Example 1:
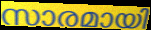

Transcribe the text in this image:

സാരമായി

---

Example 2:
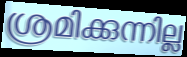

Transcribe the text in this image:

ശ്രമിക്കുന്നില്ല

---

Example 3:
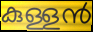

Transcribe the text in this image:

കുള്ളൻ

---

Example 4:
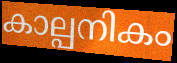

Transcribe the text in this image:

കാല്പനികം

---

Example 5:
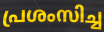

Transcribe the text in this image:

പ്രശംസിച്ച